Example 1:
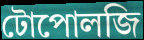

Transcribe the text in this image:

টোপোলজি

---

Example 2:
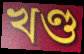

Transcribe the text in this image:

খণ্ড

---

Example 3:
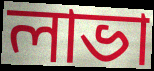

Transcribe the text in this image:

লাভা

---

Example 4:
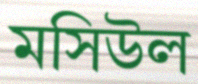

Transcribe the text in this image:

মসিউল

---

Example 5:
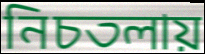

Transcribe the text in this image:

নিচতলায়